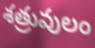
శత్రువులం